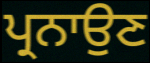
ਪ੍ਰਨਾਉਣ